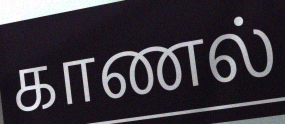
காணல்